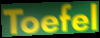
Toefel